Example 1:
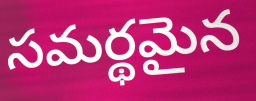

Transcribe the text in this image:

సమర్థమైన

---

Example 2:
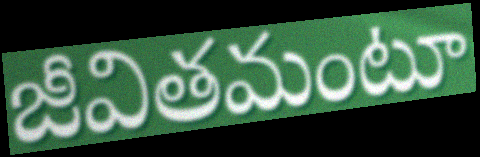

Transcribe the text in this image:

జీవితమంటూ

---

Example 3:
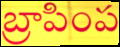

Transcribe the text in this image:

బ్రాపింప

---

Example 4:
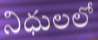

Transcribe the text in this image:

నిధులలో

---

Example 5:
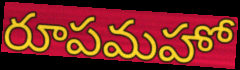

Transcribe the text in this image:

రూపమహో